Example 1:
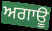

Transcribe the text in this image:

ਅਗਾਊ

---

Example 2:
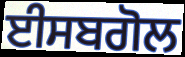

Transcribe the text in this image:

ਈਸਬਗੋਲ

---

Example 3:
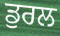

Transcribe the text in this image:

ਡੁਰਲ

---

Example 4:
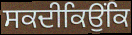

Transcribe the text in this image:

ਸਕਦੀਕਿਉਂਕਿ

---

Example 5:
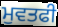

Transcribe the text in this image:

ਮੁਵਤਫੀ